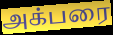
அக்பரை